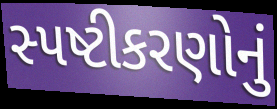
સ્પષ્ટીકરણોનું